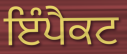
ਇੰਪੈਕਟ